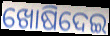
ଖୋଷିଦେଇ